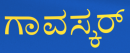
ಗಾವಸ್ಕರ್